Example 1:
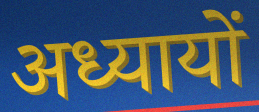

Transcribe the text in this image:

अध्यायों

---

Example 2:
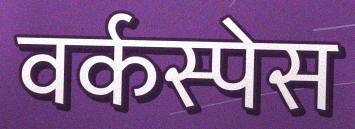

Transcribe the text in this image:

वर्कस्पेस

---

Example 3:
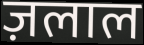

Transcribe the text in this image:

ज़लाल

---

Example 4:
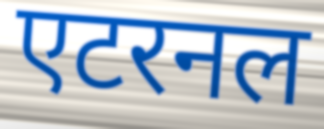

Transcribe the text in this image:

एटरनल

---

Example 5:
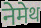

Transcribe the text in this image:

नेमेथ